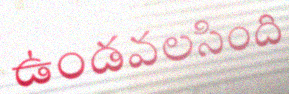
ఉండవలసింది